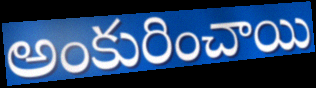
అంకురించాయి